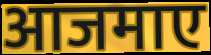
आजमाए